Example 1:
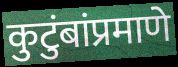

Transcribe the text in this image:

कुटुंबांप्रमाणे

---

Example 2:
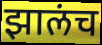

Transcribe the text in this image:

झालंच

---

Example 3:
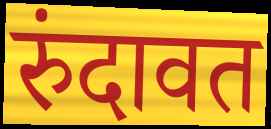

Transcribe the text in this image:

रुंदावत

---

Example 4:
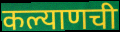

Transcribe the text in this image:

कल्याणची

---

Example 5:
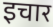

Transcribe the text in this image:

इचार